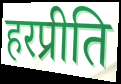
हरप्रीति